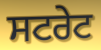
ਸਟਰੇਟ